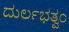
ದುರ್ಲಭತ್ವಂ